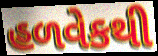
હળવેકથી